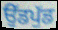
ਉੱਡਪੁੱਡ